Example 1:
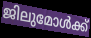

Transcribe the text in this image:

ജിലുമോൾക്ക്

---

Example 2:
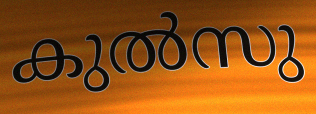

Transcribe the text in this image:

കുൽസു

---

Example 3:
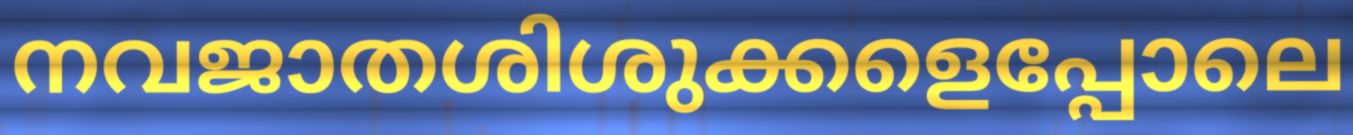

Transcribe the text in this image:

നവജാതശിശുക്കളെപ്പോലെ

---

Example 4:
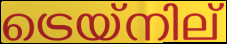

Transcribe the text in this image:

ട്രെയ്നില്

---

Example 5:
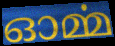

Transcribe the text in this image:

ഓൎമ്മ